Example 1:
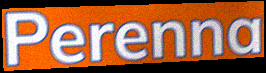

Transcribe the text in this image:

Perenna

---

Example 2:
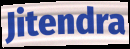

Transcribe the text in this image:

Jitendra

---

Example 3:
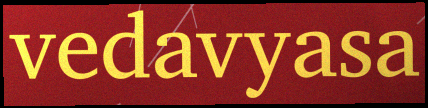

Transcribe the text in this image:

vedavyasa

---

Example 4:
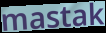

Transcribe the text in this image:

mastak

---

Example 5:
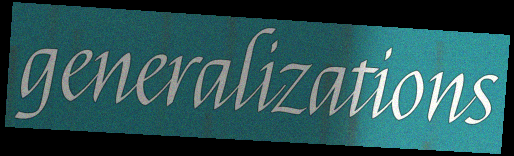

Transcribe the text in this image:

generalizations